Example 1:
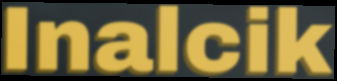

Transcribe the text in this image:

Inalcik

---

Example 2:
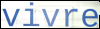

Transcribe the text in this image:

vivre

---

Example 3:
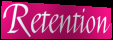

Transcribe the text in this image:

Retention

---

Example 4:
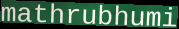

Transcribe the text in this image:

mathrubhumi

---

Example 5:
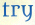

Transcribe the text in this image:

try